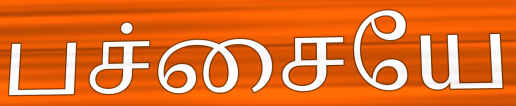
பச்சையே